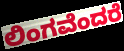
ಲಿಂಗವೆಂದರೆ